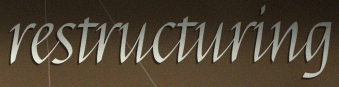
restructuring